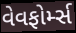
વેવફોર્મ્સ